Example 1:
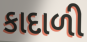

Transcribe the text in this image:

કાદાળી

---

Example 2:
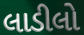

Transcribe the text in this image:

લાડીલો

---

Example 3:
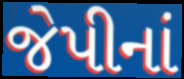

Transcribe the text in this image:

જેપીનાં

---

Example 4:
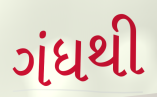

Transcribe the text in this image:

ગંધથી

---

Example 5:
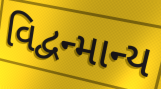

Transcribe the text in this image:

વિદ્વન્માન્ય